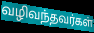
வழிவந்தவர்கள்